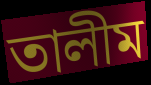
তালীম